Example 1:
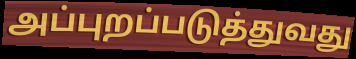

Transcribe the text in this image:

அப்புறப்படுத்துவது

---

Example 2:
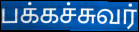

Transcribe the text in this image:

பக்கச்சுவர்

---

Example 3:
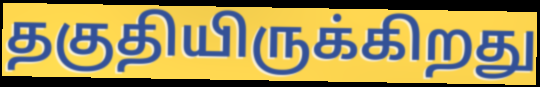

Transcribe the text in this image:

தகுதியிருக்கிறது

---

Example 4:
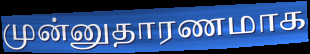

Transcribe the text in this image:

முன்னுதாரணமாக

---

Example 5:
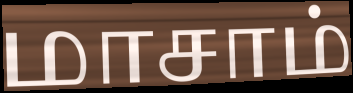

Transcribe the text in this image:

மாசாம்